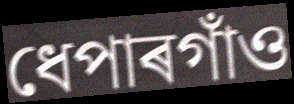
ধেপাৰগাঁও